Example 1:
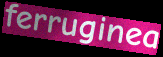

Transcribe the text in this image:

ferruginea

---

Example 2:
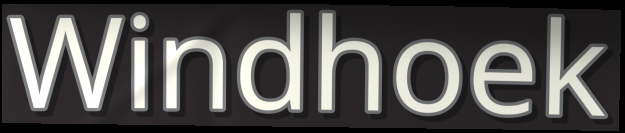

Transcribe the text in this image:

Windhoek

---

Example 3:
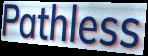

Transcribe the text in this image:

Pathless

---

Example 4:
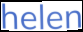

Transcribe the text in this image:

helen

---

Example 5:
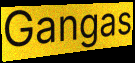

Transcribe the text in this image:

Gangas